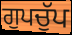
ਗੁਪਚੁੱਪ